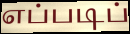
எப்படிப்